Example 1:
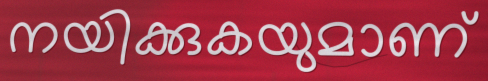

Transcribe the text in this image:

നയിക്കുകയുമാണ്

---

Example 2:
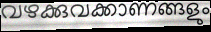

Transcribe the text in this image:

വഴക്കുവക്കാണങ്ങളും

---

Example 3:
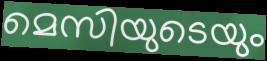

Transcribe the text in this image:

മെസിയുടെയും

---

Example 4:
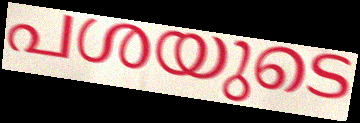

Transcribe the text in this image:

പശയുടെ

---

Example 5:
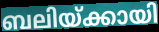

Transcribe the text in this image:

ബലിയ്ക്കായി